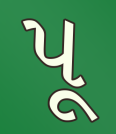
પૂ